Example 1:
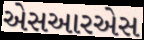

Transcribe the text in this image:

એસઆરએસ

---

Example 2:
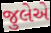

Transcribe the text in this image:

જુલેએ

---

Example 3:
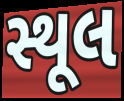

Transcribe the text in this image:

સ્થૂલ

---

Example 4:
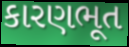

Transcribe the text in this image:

કારણભૂત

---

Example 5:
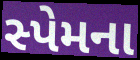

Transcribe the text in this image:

સ્પેમના